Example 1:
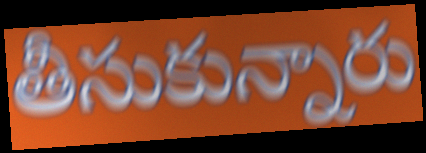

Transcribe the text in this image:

తీసుకున్నారు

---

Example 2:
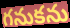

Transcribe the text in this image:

గనుకను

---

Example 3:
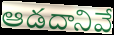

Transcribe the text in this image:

ఆడదానివే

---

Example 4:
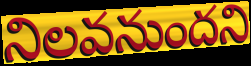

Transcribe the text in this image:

నిలవనుందని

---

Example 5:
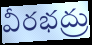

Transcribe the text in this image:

వీరభద్రు